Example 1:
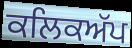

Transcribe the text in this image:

ਕਲਿਕਅੱਪ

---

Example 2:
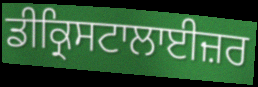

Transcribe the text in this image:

ਡੀਕ੍ਰਿਸਟਾਲਾਈਜ਼ਰ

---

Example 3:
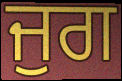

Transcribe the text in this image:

ਜੁਗ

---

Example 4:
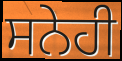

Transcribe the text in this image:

ਸਨੇਹੀ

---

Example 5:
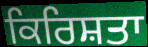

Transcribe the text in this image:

ਕਿਰਿਸ਼ਤਾ